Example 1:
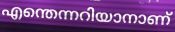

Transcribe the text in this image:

എന്തെന്നറിയാനാണ്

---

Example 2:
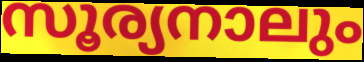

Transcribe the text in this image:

സൂര്യനാലും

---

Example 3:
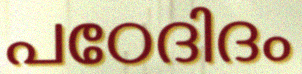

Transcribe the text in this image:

പഠേദിദം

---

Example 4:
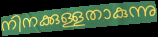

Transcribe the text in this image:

നിനക്കുള്ളതാകുന്നു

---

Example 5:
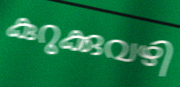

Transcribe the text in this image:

കുറുക്കുവഴി